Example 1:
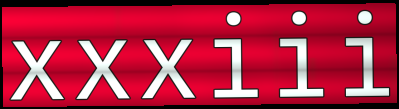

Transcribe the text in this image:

xxxiii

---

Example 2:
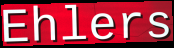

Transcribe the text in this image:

Ehlers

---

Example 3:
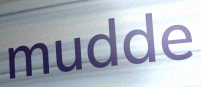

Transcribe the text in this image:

mudde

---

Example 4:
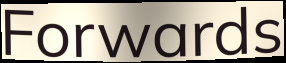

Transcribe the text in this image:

Forwards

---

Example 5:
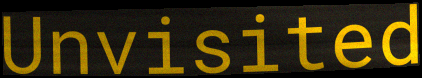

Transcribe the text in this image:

Unvisited